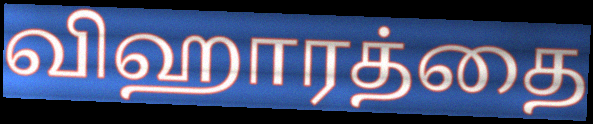
விஹாரத்தை